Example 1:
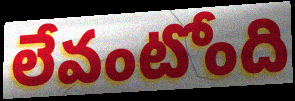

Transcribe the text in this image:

లేవంటోంది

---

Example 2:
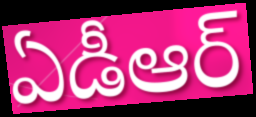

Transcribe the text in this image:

ఏడీఆర్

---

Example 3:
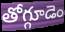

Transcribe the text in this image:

తోగ్గూడెం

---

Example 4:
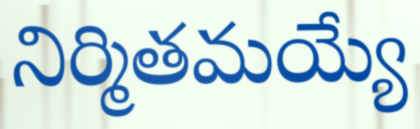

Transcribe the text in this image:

నిర్మితమయ్యే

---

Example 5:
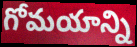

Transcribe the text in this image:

గోమయాన్ని